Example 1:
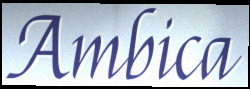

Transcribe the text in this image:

Ambica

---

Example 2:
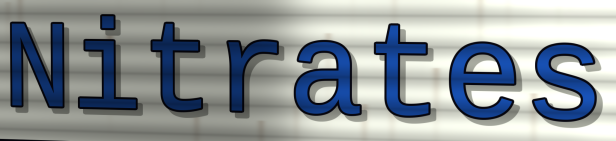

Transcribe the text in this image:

Nitrates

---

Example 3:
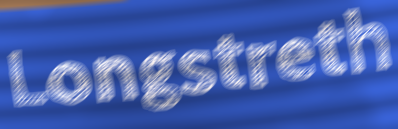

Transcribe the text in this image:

Longstreth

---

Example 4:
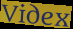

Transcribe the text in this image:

Videx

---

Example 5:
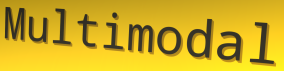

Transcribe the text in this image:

Multimodal